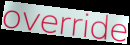
override